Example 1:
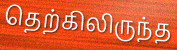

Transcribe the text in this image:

தெற்கிலிருந்த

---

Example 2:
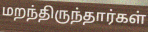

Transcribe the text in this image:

மறந்திருந்தார்கள்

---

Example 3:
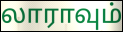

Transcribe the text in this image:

லாராவும்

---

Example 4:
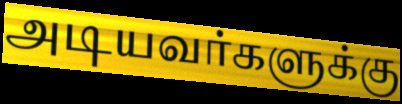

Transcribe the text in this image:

அடியவர்களுக்கு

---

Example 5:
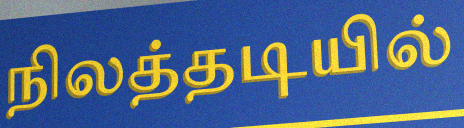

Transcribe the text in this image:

நிலத்தடியில்